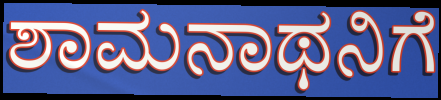
ಶಾಮನಾಥನಿಗೆ